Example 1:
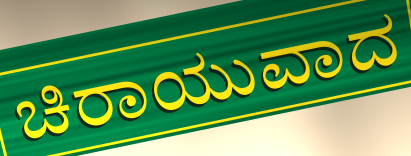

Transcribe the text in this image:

ಚಿರಾಯುವಾದ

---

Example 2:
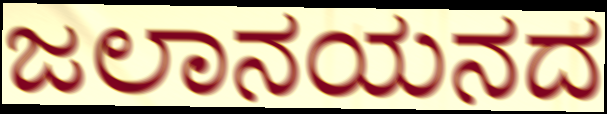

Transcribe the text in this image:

ಜಲಾನಯನದ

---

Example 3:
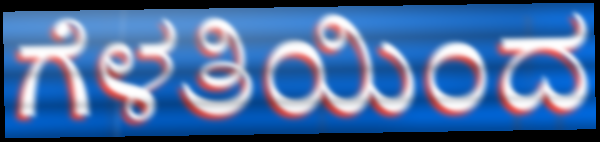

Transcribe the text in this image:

ಗೆಳತಿಯಿಂದ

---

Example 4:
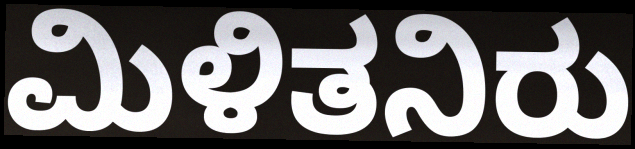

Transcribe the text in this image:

ಮಿಳಿತನಿರು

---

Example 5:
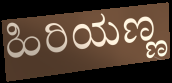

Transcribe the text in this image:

ಹಿರಿಯಣ್ಣ